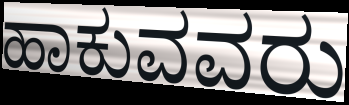
ಹಾಕುವವರು